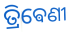
ତ୍ରିଵେଣୀ